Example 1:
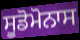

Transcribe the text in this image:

ਸੂਡੋਮੋਨਾਸ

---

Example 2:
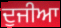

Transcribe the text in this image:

ਦੁਜੀਆ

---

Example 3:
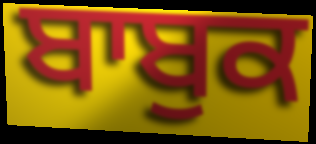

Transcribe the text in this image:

ਬਾਬੁਕ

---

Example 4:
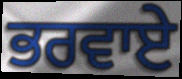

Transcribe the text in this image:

ਭਰਵਾਏ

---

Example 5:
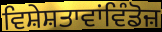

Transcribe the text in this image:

ਵਿਸ਼ੇਸ਼ਤਾਵਾਂਵਿੰਡੋਜ਼